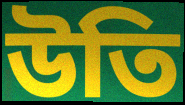
উতি